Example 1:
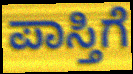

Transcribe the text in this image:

ಪಾಸ್ತಿಗೆ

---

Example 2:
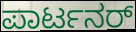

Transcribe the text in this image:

ಪಾರ್ಟನರ್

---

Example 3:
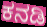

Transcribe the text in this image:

ಕನಡಿ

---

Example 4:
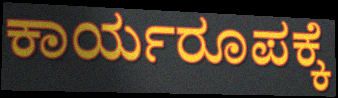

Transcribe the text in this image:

ಕಾರ್ಯರೂಪಕ್ಕೆ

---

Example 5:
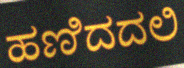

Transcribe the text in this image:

ಹಣಿದದಲಿ